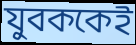
যুবককেই